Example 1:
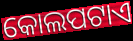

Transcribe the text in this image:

କୋଲପଟାଏ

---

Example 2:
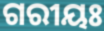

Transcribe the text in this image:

ଗରୀୟଃ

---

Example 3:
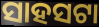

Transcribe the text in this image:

ସାହସଟା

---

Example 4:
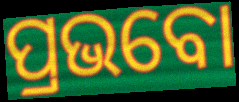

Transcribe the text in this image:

ପ୍ରଭବୋ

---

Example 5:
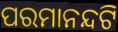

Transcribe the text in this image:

ପରମାନନ୍ଦଟି